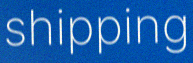
shipping